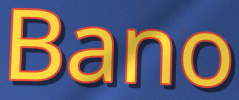
Bano